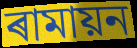
ৰামায়ন